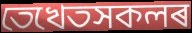
তেখেতসকলৰ